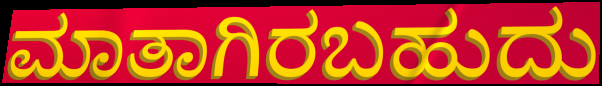
ಮಾತಾಗಿರಬಹುದು